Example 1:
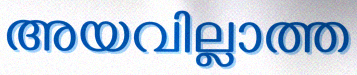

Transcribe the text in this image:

അയവില്ലാത്ത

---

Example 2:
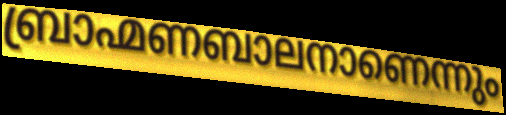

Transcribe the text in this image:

ബ്രാഹ്മണബാലനാണെന്നും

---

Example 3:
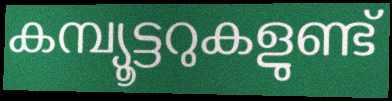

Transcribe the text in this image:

കമ്പ്യൂട്ടറുകളുണ്ട്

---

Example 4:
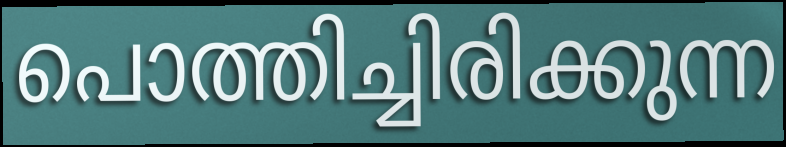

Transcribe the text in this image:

പൊത്തിച്ചിരിക്കുന്ന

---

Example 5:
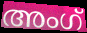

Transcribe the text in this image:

അംഗ്